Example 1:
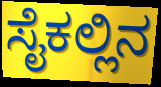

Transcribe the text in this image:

ಸೈಕಲ್ಲಿನ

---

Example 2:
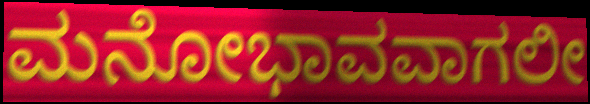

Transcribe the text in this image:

ಮನೋಭಾವವಾಗಲೀ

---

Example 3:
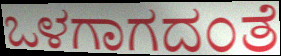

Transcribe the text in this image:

ಒಳಗಾಗದಂತೆ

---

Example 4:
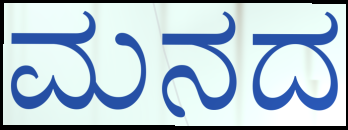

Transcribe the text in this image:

ಮನದ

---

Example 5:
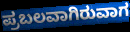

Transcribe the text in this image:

ಪ್ರಬಲವಾಗಿರುವಾಗ